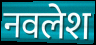
नवलेश